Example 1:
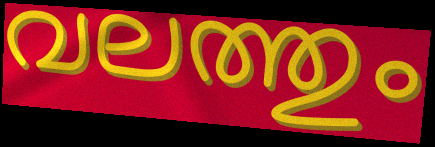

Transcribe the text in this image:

വലത്തും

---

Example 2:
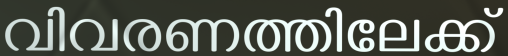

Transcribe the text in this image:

വിവരണത്തിലേക്ക്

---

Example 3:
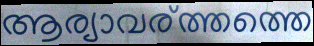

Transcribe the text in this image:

ആര്യാവര്ത്തത്തെ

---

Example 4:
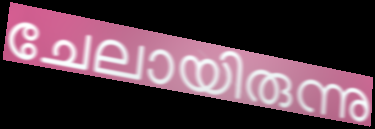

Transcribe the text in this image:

ചേലായിരുന്നു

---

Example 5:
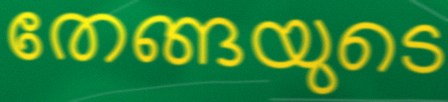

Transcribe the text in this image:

തേങ്ങയുടെ